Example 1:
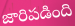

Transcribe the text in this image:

జారిపడింది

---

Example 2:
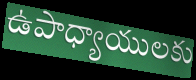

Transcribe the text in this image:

ఉపాధ్యాయులకు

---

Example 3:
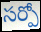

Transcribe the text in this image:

సర్పో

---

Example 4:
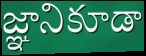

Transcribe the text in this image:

జ్ఞానికూడా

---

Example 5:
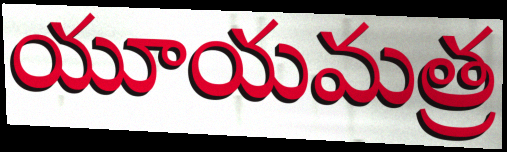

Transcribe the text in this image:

యూయమత్ర